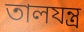
তালযন্ত্র